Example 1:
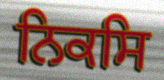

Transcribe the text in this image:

ਨਿਕਸਿ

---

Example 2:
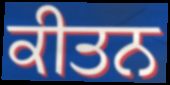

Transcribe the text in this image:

ਕੀਤਨ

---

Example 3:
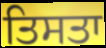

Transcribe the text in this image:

ਤਿਸਤਾ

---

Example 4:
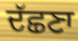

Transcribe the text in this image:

ਦੱਛਣਾ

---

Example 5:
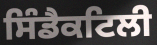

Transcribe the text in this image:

ਸਿੰਡੈਕਟਿਲੀ